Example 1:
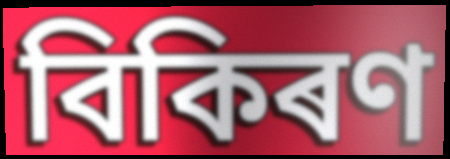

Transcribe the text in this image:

বিকিৰণ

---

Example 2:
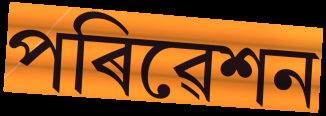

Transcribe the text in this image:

পৰিৱেশন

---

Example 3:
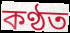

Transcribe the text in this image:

কণ্ঠত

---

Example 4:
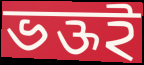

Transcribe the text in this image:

ভক্তই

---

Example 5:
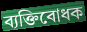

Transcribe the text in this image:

ব্যক্তিবোধক